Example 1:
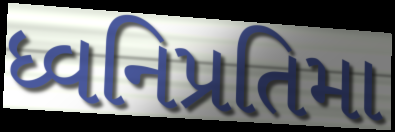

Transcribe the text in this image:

ધ્વનિપ્રતિમા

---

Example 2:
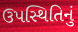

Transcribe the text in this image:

ઉપસ્થિતિનું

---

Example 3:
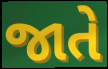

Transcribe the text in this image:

જાતે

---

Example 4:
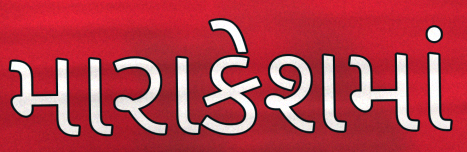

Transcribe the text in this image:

મારાકેશમાં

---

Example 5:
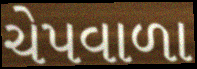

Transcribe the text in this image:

ચેપવાળા